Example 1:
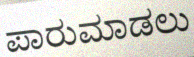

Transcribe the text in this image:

ಪಾರುಮಾಡಲು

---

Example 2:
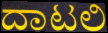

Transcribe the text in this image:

ದಾಟಲಿ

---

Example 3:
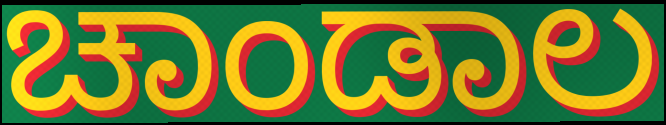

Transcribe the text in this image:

ಚಾಂಡಾಲ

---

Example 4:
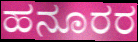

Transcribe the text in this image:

ಹನೂರರ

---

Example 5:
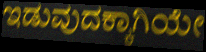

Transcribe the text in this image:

ಇಡುವುದಕ್ಕಾಗಿಯೇ